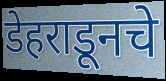
डेहराडूनचे